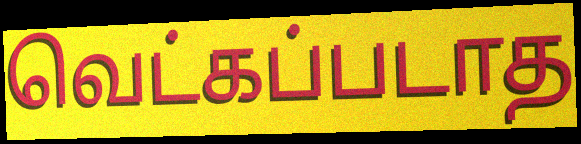
வெட்கப்படாத